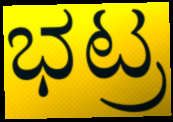
ಭಟ್ರ